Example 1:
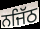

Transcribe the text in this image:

ਨਜਿੱਠ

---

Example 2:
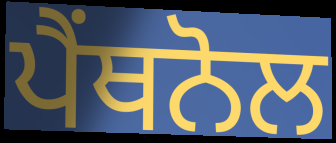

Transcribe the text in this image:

ਪੈਂਥਨੋਲ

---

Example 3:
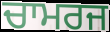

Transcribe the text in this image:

ਚਾਮਰਜ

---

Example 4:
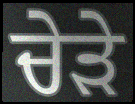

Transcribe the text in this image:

ਚੇੜੇ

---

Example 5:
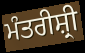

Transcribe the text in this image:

ਮੰਤਰੀਸ਼੍ਰੀ